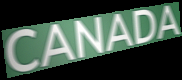
CANADA